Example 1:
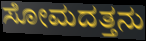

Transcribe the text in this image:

ಸೋಮದತ್ತನು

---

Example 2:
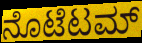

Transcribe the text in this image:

ನೊಟೆಟಮ್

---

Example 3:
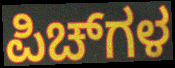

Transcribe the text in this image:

ಪಿಚ್‌ಗಳ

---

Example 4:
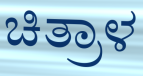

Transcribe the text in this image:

ಚಿತ್ರಾಳ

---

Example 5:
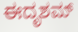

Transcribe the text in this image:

ಈದೃಶಮ್